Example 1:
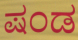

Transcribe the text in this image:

ಷಂಡ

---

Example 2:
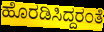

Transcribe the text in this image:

ಹೊರಡಿಸಿದ್ದರಂತೆ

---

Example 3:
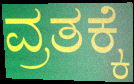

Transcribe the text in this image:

ವ್ರತಕ್ಕೆ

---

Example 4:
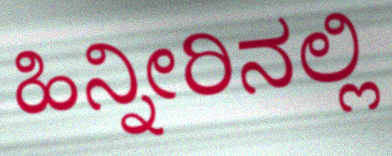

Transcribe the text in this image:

ಹಿನ್ನೀರಿನಲ್ಲಿ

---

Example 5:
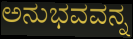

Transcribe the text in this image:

ಅನುಭವವನ್ನ